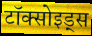
टॉक्सोइड्स